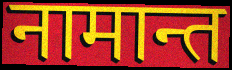
नामान्त